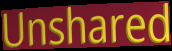
Unshared